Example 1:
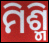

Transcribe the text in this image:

ମିଶ୍ମି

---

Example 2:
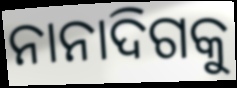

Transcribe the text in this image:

ନାନାଦିଗକୁ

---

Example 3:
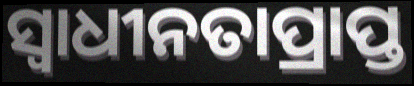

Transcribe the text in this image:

ସ୍ବାଧୀନତାପ୍ରାପ୍ତ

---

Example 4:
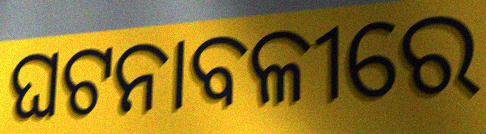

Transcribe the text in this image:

ଘଟନାବଳୀରେ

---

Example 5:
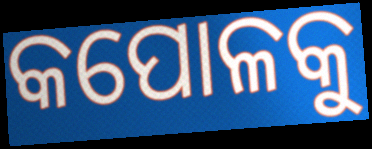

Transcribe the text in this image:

କପୋଳକୁ